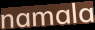
namala